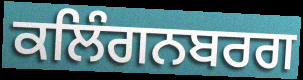
ਕਲਿੰਗਨਬਰਗ